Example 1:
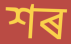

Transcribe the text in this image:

শৰ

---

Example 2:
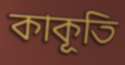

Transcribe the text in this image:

কাকূতি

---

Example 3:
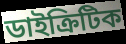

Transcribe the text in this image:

ডাইক্ৰিটিক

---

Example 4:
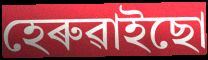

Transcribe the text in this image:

হেৰুৱাইছো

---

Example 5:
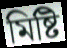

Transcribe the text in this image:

মিষ্টি